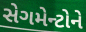
સેગમેન્ટોને